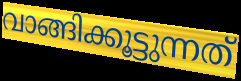
വാങ്ങിക്കൂട്ടുന്നത്